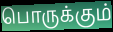
பொருக்கும்